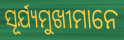
ସୂର୍ଯ୍ୟମୁଖୀମାନେ